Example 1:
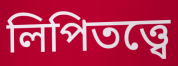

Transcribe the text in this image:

লিপিতত্ত্বে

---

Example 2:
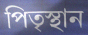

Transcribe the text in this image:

পিতৃস্থান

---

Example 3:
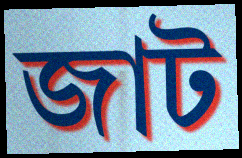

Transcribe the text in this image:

জাট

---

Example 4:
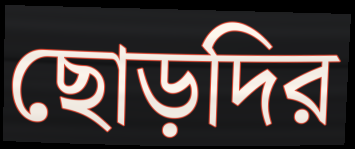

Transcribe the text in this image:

ছোড়দির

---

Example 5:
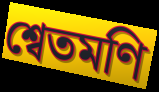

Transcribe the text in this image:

শ্বেতমণি